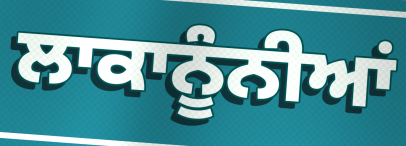
ਲਾਕਾਨੂੰਨੀਆਂ